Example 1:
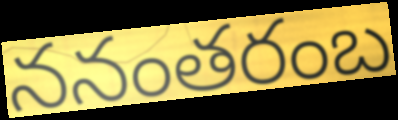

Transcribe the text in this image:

ననంతరంబ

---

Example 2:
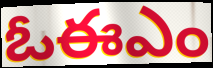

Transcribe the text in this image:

ఓఈఎం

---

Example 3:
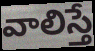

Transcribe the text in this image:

వాలిస్తే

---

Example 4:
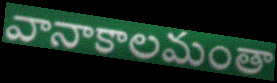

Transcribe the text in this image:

వానాకాలమంతా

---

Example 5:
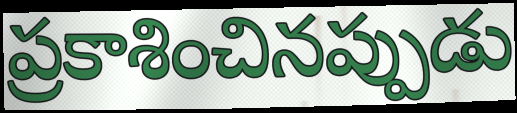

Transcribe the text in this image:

ప్రకాశించినప్పుడు